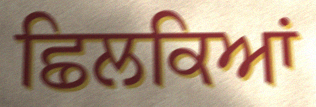
ਛਿਲਕਿਆਂ